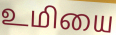
உமியை